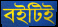
বইটিই